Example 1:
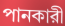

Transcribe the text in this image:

পানকারী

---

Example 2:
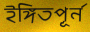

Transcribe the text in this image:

ইঙ্গিতপূর্ন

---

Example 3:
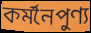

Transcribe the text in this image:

কর্মনৈপুণ্য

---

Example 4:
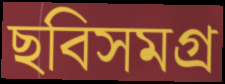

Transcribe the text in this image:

ছবিসমগ্র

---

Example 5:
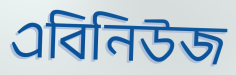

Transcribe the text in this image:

এবিনিউজ